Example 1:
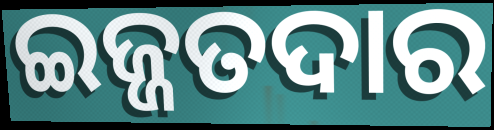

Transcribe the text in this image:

ଇଜ୍ଜତଦାର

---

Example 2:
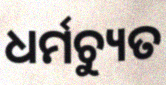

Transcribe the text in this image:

ଧର୍ମଚ୍ୟୁତ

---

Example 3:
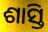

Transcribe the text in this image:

ଶାସ୍ତି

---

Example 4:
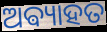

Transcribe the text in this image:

ଅଵ୍ୟାହତ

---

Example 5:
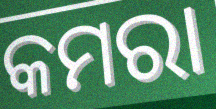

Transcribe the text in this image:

କମରା